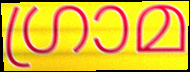
ഗ്രാമ